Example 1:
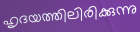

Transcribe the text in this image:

ഹൃദയത്തിലിരിക്കുന്നു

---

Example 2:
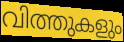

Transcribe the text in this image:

വിത്തുകളും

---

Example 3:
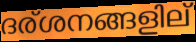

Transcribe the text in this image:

ദര്ശനങ്ങളില്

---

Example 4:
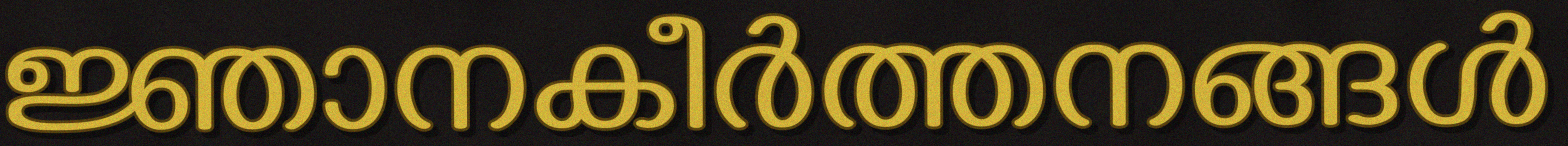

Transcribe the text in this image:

ജ്ഞാനകീർത്തനങ്ങൾ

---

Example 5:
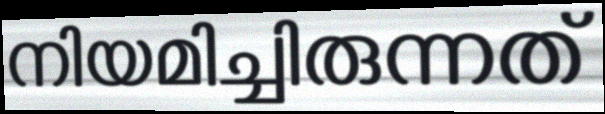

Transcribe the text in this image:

നിയമിച്ചിരുന്നത്